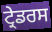
ਟ੍ਰੇਡਰਸ